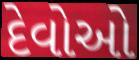
દેવોઓ